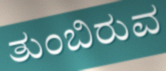
ತುಂಬಿರುವ